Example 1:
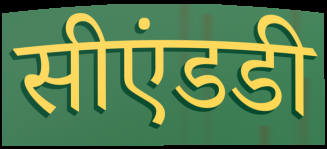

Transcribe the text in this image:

सीएंडडी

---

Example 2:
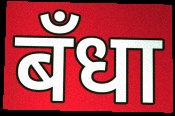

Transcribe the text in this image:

बँधा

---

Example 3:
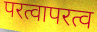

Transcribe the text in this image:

परत्वापरत्व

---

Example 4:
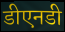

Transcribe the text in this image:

डीएनडी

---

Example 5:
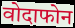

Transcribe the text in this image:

वोदाफोन